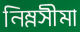
নিম্নসীমা